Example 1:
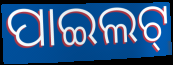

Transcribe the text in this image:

ପାଇଲଟ୍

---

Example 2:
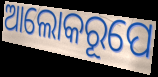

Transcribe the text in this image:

ଆଲୋକରୂପେ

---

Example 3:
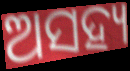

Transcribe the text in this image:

ଅସହ୍ଯ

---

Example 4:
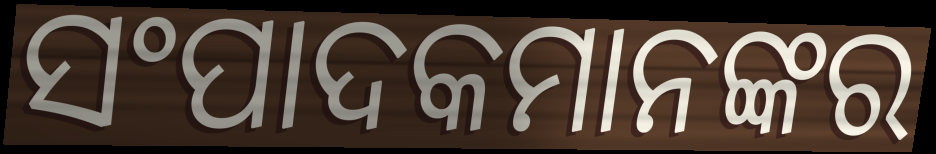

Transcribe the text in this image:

ସଂପାଦକମାନଙ୍କର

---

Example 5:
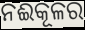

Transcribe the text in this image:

ନଈକୂଳର